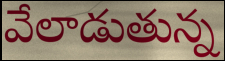
వేలాడుతున్న